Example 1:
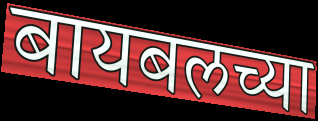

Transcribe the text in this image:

बायबलच्या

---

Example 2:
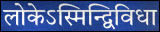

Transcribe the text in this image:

लोकेऽस्मिन्द्विविधा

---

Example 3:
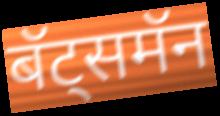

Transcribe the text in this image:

बॅट्समॅन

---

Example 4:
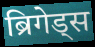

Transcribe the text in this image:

ब्रिगेड्स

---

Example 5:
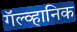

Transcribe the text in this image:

गॅल्व्हानिक